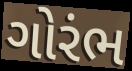
ગોરંભ